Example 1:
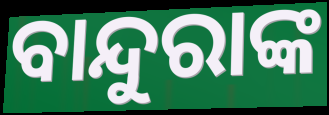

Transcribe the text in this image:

ବାନ୍ଦୁରାଙ୍କ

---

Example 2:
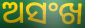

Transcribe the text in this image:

ଅସଂଖ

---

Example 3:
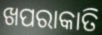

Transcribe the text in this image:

ଖପରାକାତି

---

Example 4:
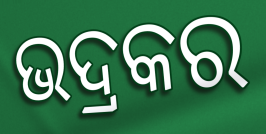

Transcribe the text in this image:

ଭଦ୍ରକର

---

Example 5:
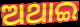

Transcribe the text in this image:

ଅଥାଇ